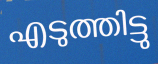
എടുത്തിട്ടു